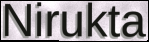
Nirukta